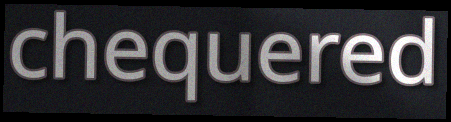
chequered